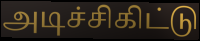
அடிச்சிகிட்டு